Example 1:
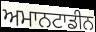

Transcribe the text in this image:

ਅਮਾਨਟਾਡੀਨ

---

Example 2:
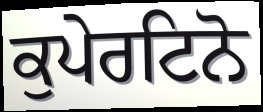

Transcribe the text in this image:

ਕੁਪੇਰਟਿਨੋ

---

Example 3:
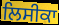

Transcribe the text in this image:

ਲਿਸੀਕਾ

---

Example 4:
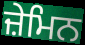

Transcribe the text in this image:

ਜ਼ੇਮਿਨ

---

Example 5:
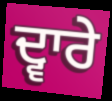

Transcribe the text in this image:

ਦ੍ਵਾਰੇ